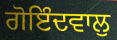
ਗੋਇੰਦਵਾਲੁ